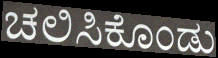
ಚಲಿಸಿಕೊಂಡು